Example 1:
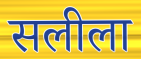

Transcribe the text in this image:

सलीला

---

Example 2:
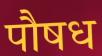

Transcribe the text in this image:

पौषध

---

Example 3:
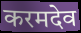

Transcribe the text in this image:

करमदेव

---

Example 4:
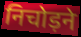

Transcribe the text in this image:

निचोड़ने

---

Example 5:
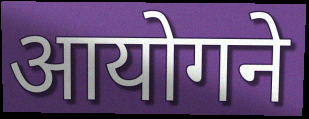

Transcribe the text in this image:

आयोगने